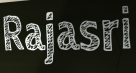
Rajasri